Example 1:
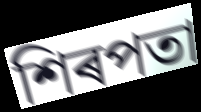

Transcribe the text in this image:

শিৰপতা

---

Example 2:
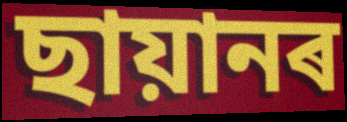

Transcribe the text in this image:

ছায়ানৰ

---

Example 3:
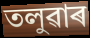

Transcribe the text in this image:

তলুৱাৰ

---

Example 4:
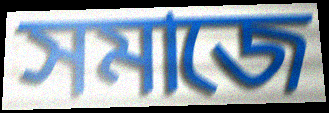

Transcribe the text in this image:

সমাজে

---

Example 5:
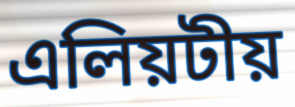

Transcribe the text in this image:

এলিয়টীয়